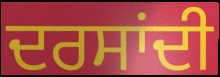
ਦਰਸਾਂਦੀ